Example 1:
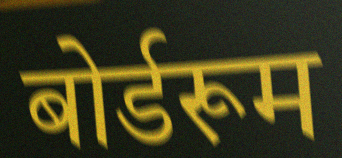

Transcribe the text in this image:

बोर्डरूम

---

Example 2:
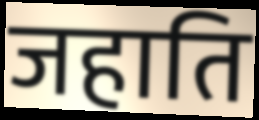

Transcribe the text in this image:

जहाति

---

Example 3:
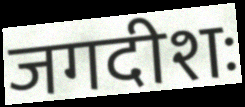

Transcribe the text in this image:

जगदीशः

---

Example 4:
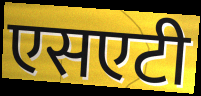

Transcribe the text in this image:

एसएटी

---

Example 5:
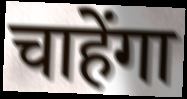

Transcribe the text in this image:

चाहेंगा